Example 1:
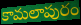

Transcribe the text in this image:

కామలాపురం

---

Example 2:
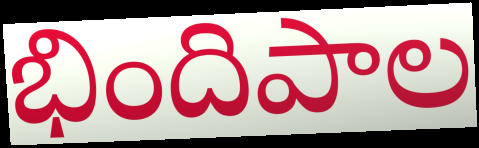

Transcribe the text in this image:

భిందిపాల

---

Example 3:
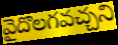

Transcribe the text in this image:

వైదొలగవచ్చని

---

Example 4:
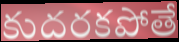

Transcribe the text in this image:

కుదరకపోతే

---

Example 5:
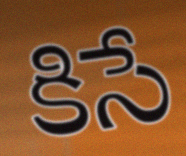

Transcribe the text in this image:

కిసే